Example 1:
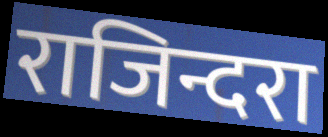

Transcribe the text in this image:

राजिन्दरा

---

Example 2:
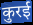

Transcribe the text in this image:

कुरई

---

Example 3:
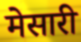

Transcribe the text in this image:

मेसारी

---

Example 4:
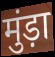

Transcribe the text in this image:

मुंड़ा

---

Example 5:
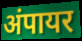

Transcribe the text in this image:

अंपायर